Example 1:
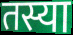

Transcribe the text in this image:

तस्या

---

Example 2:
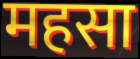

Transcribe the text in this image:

महसा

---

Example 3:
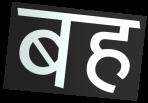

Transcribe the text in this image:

बह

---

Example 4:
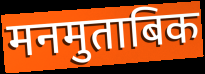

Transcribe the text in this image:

मनमुताबिक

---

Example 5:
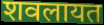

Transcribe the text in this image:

शवलायत